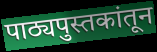
पाठ्यपुस्तकांतून